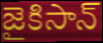
జైకిసాన్